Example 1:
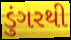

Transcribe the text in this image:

ડુંગરથી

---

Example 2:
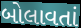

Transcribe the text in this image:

બોલાવતાં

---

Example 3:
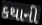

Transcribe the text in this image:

કથાની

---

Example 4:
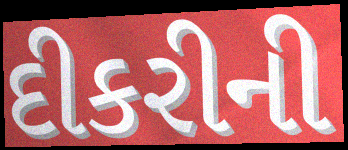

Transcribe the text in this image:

દીકરીની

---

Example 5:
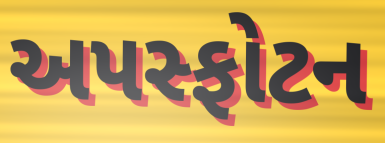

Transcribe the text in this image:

અપસ્ફોટન